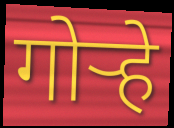
गोऱ्हे